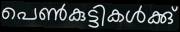
പെൺകുട്ടികൾക്കു്